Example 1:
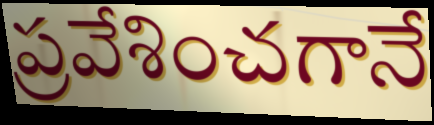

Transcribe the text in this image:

ప్రవేశించగానే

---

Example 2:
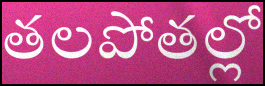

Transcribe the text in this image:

తలపోతల్లో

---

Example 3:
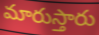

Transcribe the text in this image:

మారుస్తారు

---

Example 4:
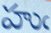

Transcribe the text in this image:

హుఁ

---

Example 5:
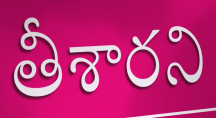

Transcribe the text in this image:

తీశారని